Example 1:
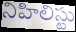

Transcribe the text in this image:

నిహిలిస్టు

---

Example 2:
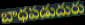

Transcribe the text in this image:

బాధపడుదురు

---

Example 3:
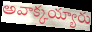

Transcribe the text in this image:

అవాక్కయ్యారు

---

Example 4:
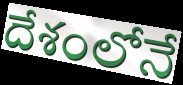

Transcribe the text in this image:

దేశంలోనే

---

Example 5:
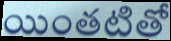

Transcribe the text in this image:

యింతటితో